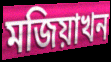
মজিয়াখন